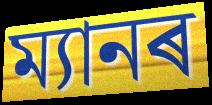
ম্যানৰ